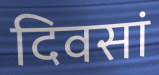
दिवसां